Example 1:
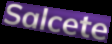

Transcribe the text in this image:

Salcete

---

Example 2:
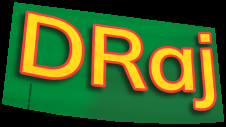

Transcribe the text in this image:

DRaj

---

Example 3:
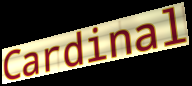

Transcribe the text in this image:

Cardinal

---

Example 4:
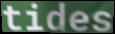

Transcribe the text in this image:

tides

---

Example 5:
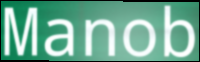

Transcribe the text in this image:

Manob